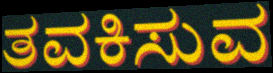
ತವಕಿಸುವ